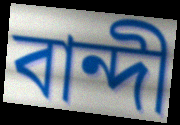
বান্দী